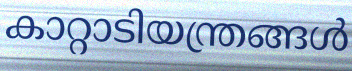
കാറ്റാടിയന്ത്രങ്ങൾ